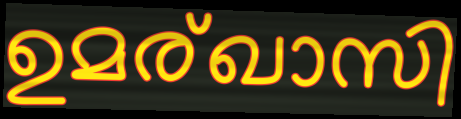
ഉമര്ഖാസി